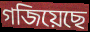
গজিয়েছে